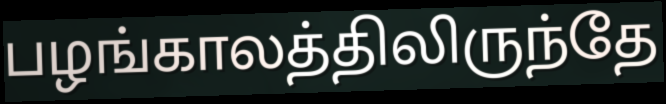
பழங்காலத்திலிருந்தே